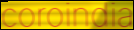
coroindia